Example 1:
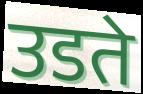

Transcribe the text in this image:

उडते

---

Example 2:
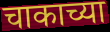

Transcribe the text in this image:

चाकाच्या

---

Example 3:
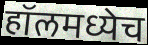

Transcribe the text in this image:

हॉलमध्येच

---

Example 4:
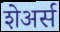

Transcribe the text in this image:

शेअर्स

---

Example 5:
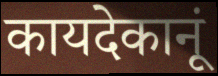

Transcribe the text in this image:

कायदेकानूं